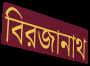
বিরজানাথ